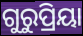
ଗୁରୁପ୍ରିୟା